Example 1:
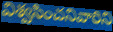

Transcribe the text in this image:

విశ్వసించనివారిని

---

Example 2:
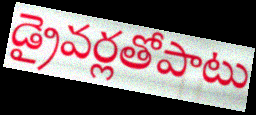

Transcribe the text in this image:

డ్రైవర్లతోపాటు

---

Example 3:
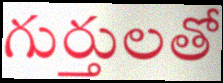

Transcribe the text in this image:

గుర్తులతో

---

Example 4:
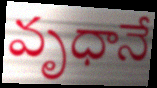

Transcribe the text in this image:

వృధానే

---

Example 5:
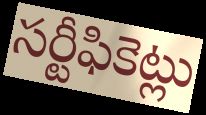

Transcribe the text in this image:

సర్టీఫికెట్లు